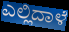
ಎಲ್ಲಿದಾಳೆ